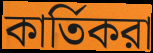
কার্তিকরা